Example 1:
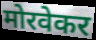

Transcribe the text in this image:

मोरवेकर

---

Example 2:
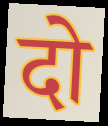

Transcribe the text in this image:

दो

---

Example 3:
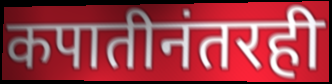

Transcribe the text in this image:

कपातीनंतरही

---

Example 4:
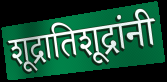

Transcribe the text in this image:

शूद्रातिशूद्रांनी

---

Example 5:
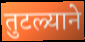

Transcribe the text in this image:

तुटल्याने